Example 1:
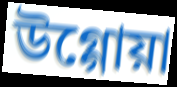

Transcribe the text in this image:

উগ্গোয়া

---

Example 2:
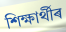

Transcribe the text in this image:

শিক্ষাৰ্থীৰ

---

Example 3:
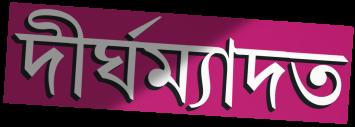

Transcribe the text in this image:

দীৰ্ঘম্যাদত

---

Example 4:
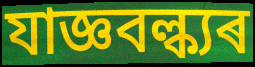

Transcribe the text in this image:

যাজ্ঞবল্ক্যৰ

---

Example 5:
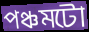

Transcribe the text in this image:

পঞ্চমটো